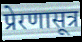
प्रेरणासूत्र